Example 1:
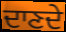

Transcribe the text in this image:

ਦਾਣਦੇ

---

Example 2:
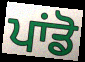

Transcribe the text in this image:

ਪਾਂਡੋ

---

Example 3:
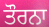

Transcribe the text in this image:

ਤੌਰਨਾ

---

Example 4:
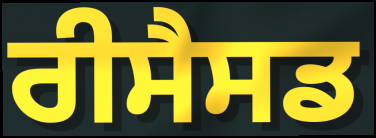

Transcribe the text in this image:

ਰੀਸੈਸਡ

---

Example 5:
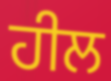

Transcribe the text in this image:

ਹੀਲ